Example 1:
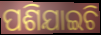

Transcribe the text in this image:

ପଶିଯାଇଚି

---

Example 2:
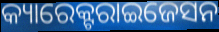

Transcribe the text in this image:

କ୍ୟାରେକ୍ଟରାଇଜେସନ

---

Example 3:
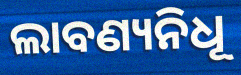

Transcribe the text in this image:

ଲାବଣ୍ୟନିଧୂ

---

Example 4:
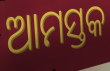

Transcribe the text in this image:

ଆମସ୍ତକ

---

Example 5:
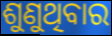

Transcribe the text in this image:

ଶୁଣୁଥିବାର